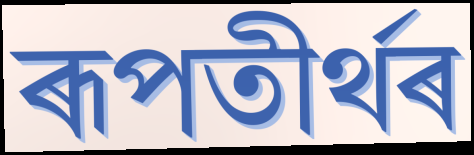
ৰূপতীৰ্থৰ